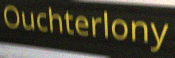
Ouchterlony